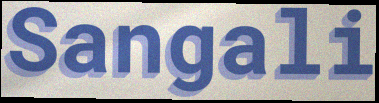
Sangali